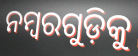
ନମ୍ବରଗୁଡ଼ିକୁ